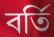
বৰ্তি